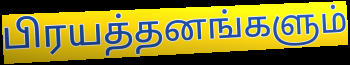
பிரயத்தனங்களும்